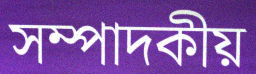
সম্পাদকীয়